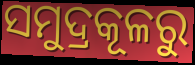
ସମୁଦ୍ରକୂଳରୁ